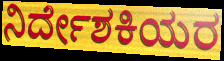
ನಿರ್ದೇಶಕಿಯರ